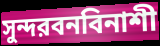
সুন্দরবনবিনাশী